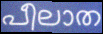
പീലാത